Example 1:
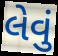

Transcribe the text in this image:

લેવું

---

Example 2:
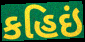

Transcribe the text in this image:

કહિઇં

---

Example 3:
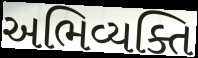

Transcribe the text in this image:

અભિવ્યક્તિ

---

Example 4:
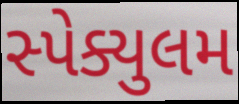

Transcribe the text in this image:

સ્પેક્યુલમ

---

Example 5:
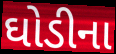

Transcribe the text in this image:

ઘોડીના